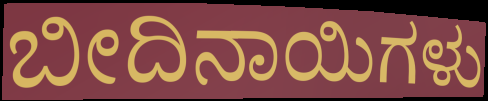
ಬೀದಿನಾಯಿಗಳು